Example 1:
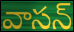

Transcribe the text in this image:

వాసన్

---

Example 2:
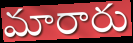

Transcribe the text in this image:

మారారు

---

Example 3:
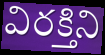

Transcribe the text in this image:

విరక్తిని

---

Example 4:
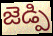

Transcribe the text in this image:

జెడ్పి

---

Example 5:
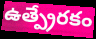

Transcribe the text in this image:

ఉత్ప్రేరకం